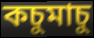
কচুমাচু